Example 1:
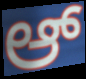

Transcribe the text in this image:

ಆ್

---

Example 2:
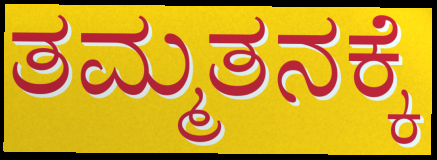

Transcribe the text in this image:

ತಮ್ಮತನಕ್ಕೆ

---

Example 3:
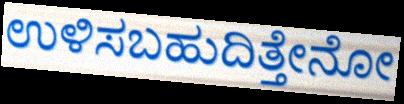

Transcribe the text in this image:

ಉಳಿಸಬಹುದಿತ್ತೇನೋ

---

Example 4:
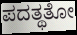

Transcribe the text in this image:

ಪದತ್ಥತೋ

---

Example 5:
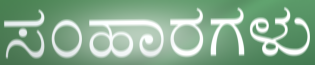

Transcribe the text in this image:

ಸಂಹಾರಗಳು